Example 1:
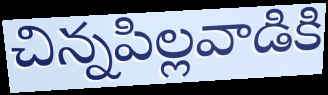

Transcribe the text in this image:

చిన్నపిల్లవాడికి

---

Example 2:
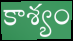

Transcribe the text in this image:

కాశ్యం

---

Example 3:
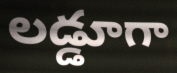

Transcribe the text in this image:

లడ్డూగా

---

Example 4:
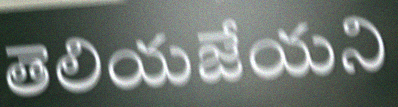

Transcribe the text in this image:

తెలియజేయని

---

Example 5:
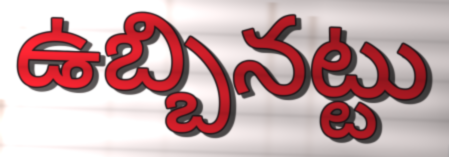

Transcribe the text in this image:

ఉబ్బినట్టు